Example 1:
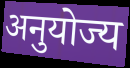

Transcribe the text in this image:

अनुयोज्य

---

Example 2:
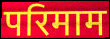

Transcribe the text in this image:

परिमाम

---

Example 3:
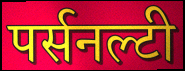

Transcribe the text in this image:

पर्सनल्टी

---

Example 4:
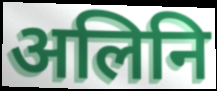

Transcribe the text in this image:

अलिनि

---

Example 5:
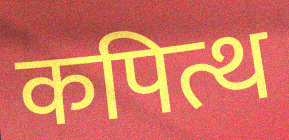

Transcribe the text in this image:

कपित्थ